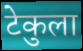
टेकुला